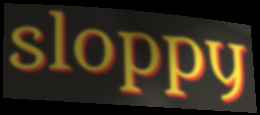
sloppy